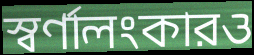
স্বর্ণালংকারও